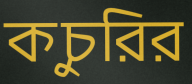
কচুরির